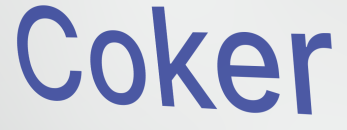
Coker